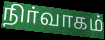
நிர்வாகம்